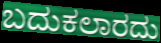
ಬದುಕಲಾರದು